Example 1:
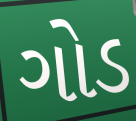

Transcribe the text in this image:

ગોડ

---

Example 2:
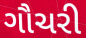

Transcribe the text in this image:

ગૌચરી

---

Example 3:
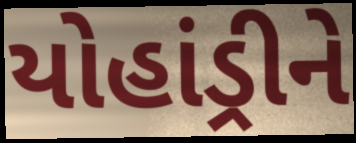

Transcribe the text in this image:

યોહાંડ્રીને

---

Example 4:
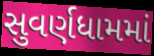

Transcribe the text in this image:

સુવર્ણધામમાં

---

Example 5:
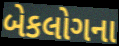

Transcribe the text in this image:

બેકલોગના